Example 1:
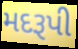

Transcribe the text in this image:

મદરૂપી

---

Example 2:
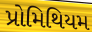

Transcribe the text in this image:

પ્રોમિથિયમ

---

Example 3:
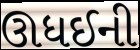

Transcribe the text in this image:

ઊધઈની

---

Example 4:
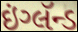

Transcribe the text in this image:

ઇંગ્લૅન્ડ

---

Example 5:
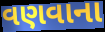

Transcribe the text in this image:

વણવાના